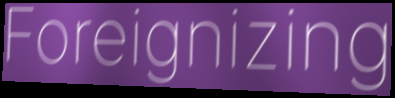
Foreignizing